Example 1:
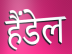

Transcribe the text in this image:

हैंडेल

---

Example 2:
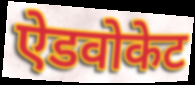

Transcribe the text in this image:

ऐडवोकेट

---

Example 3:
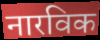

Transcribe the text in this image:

नारविक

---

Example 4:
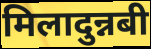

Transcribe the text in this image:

मिलादुन्नबी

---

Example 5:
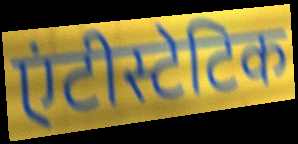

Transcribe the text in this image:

एंटीस्टेटिक